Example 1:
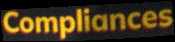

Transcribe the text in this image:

Compliances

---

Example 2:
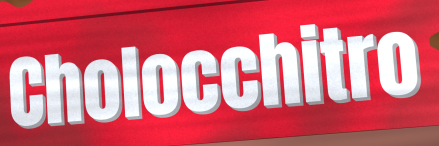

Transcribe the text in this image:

Cholocchitro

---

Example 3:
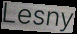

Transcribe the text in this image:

Lesny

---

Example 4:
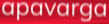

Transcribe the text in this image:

apavarga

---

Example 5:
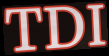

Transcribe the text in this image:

TDI